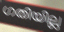
ഗതിയില്ല